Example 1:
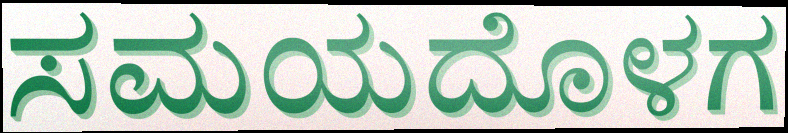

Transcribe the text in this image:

ಸಮಯದೊಳಗ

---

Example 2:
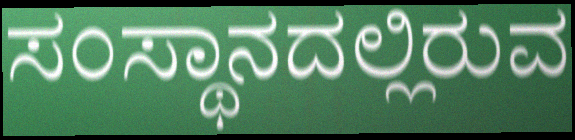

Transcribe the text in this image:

ಸಂಸ್ಥಾನದಲ್ಲಿರುವ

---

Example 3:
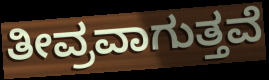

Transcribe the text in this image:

ತೀವ್ರವಾಗುತ್ತವೆ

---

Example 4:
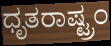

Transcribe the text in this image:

ಧೃತರಾಷ್ಟ್ರಂ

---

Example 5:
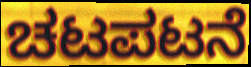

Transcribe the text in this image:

ಚಟಪಟನೆ